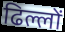
ढिल्लों